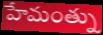
హేమంత్ను